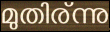
മുതിര്ന്നു